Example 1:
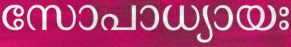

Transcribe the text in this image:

സോപാധ്യായഃ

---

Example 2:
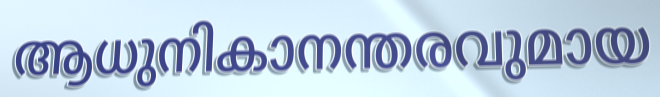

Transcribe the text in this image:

ആധുനികാനന്തരവുമായ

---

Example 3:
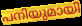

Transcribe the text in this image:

പനിയുമായി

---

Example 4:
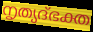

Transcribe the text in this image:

നൃത്യദ്ഭക്ത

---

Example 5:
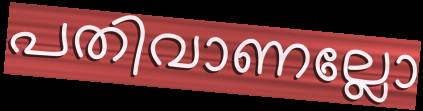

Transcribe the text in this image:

പതിവാണല്ലോ